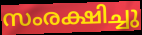
സംരക്ഷിച്ചു